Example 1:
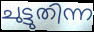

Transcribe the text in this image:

ചുട്ടുതിന്ന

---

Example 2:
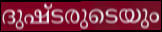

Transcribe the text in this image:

ദുഷ്ടരുടെയും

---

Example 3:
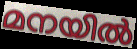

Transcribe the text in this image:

മനയിൽ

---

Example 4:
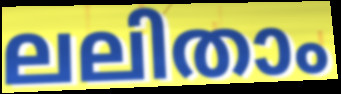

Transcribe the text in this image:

ലലിതാം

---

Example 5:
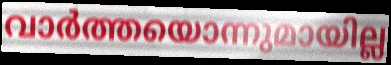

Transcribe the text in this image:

വാർത്തയൊന്നുമായില്ല